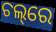
ଚଲ୍‌ରେ